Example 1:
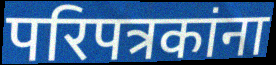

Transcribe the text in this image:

परिपत्रकांना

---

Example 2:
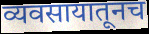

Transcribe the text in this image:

व्यवसायातूनच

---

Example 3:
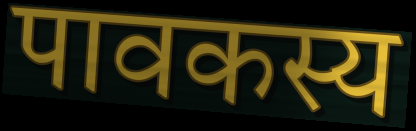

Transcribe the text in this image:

पावकस्य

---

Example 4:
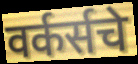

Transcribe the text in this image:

वर्कर्सचे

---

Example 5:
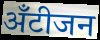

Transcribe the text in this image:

अँटीजन